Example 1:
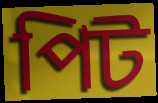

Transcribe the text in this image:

পিট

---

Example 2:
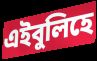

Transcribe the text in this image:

এইবুলিহে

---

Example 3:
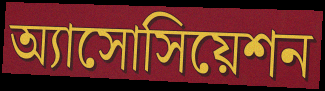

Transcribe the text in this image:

অ্যাসোসিয়েশন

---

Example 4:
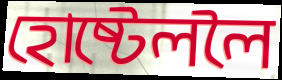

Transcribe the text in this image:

হোষ্টেললৈ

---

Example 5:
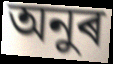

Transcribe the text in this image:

অনুৰ